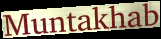
Muntakhab